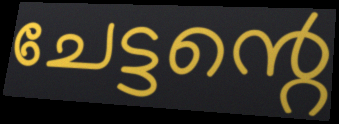
ചേട്ടന്റെ